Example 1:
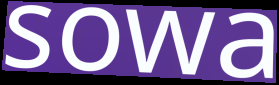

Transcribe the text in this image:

sowa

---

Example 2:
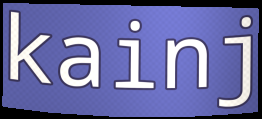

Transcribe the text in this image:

kainj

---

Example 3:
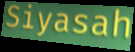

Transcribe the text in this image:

Siyasah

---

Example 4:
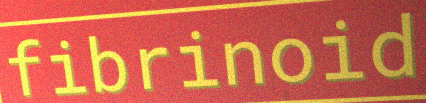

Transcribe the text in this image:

fibrinoid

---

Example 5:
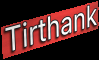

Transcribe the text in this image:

Tirthank